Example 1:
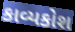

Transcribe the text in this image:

કાવ્યકોશ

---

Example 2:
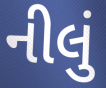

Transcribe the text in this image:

નીલું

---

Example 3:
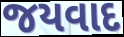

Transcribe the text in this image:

જયવાદ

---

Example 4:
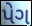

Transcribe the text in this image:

પેગ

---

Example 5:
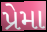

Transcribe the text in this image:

પ્રેમા